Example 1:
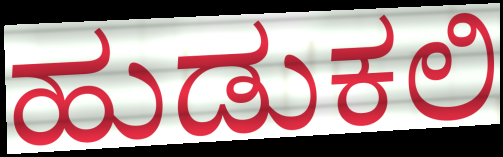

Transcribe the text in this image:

ಹುಡುಕಲಿ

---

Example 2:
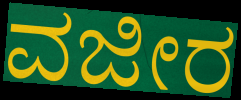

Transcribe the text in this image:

ವಜೀರ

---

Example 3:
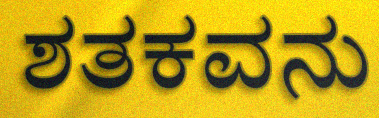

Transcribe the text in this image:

ಶತಕವನು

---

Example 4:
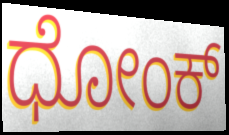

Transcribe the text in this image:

ಧೋಂಕ್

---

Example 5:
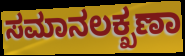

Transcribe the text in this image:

ಸಮಾನಲಕ್ಖಣಾ